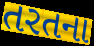
તરતના